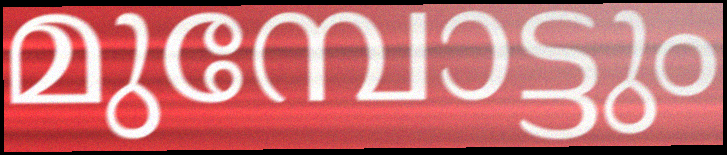
മുമ്പോട്ടും